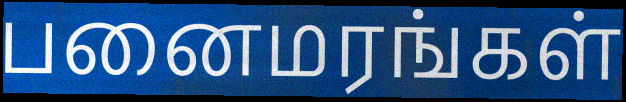
பனைமரங்கள்